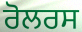
ਰੋਲਰਸ